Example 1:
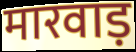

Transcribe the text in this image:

मारवाड़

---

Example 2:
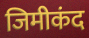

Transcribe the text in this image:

जिमीकंद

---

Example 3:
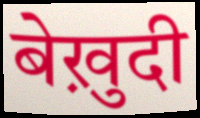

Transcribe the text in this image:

बेख़ुदी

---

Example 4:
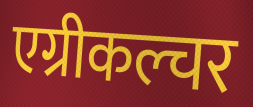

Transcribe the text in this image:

एग्रीकल्चर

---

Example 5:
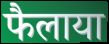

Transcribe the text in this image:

फैलाया